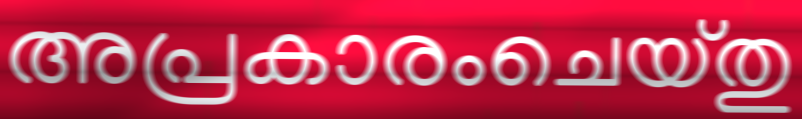
അപ്രകാരംചെയ്തു